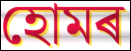
হোমৰ